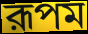
রূপম